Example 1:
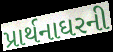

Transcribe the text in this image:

પ્રાર્થનાઘરની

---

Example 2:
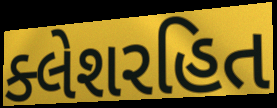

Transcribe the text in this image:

ક્લેશરહિત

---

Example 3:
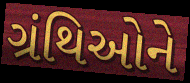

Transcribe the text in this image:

ગ્રંથિઓને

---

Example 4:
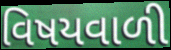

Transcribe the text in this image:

વિષયવાળી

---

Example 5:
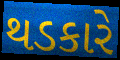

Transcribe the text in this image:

થડકારે